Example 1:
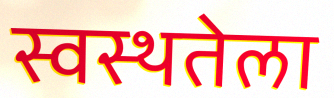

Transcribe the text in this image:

स्वस्थतेला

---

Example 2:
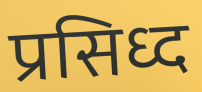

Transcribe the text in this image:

प्रसिध्द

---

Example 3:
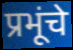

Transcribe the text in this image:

प्रभूंचे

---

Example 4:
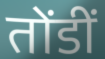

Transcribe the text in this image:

तोंडीं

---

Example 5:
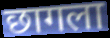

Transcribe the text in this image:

छागला